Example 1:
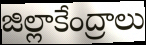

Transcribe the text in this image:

జిల్లాకేంద్రాలు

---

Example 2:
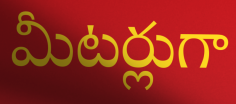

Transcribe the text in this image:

మీటర్లుగా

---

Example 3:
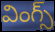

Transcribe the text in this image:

వింగ్స్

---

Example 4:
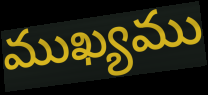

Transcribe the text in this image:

ముఖ్యము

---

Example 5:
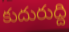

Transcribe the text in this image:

కుదురుద్ది